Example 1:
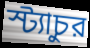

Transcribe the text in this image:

স্ট্যাচুর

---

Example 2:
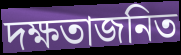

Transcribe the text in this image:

দক্ষতাজনিত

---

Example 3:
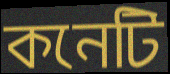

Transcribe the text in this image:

কনেটি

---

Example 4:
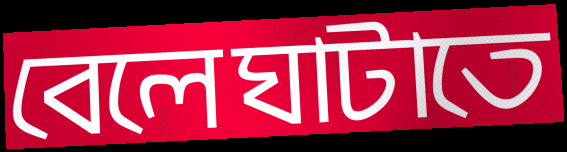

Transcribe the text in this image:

বেলেঘাটাতে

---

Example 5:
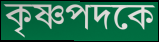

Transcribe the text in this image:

কৃষ্ণপদকে